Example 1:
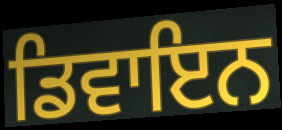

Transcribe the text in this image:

ਡਿਵਾਇਨ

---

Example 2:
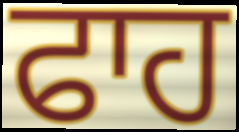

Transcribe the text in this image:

ਫਾਹ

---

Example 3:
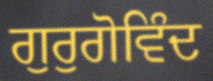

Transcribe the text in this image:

ਗੁਰੁਗੋਵਿੰਦ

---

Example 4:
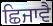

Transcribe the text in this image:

ਛਿਜਾਵੈ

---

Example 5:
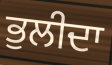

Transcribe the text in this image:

ਭੁਲੀਦਾ